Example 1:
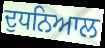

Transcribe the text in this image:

ਦੁਧਨਿਆਲ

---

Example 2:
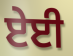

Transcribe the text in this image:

ਏਈ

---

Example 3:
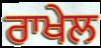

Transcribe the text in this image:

ਰਾਖੇਲ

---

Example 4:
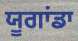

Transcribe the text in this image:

ਯੂਗਾਂਡਾ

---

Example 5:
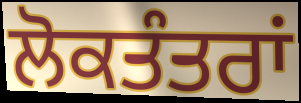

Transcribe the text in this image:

ਲੋਕਤੰਤਰਾਂ